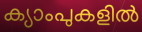
ക്യാംപുകളിൽ